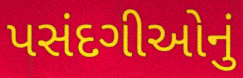
પસંદગીઓનું